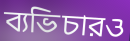
ব্যভিচারও